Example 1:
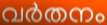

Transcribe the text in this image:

വർതനം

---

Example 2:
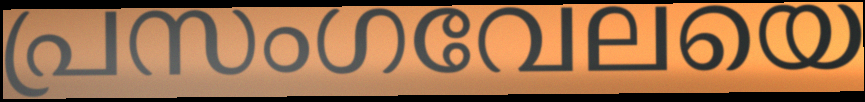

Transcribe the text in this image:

പ്രസംഗവേലയെ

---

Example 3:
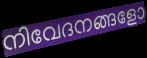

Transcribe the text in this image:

നിവേദനങ്ങളോ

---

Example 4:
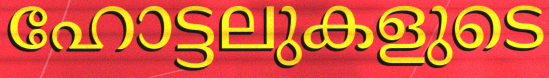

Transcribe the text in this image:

ഹോട്ടലുകളുടെ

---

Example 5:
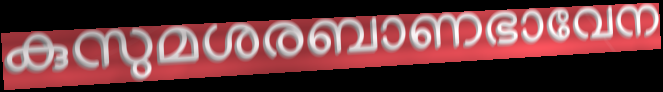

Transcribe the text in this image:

കുസുമശരബാണഭാവേന